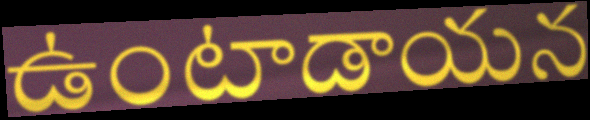
ఉంటాడాయన